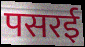
पसरई